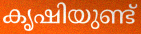
കൃഷിയുണ്ട്